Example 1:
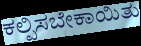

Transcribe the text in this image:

ಕಲ್ಪಿಸಬೇಕಾಯಿತು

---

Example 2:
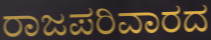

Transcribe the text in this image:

ರಾಜಪರಿವಾರದ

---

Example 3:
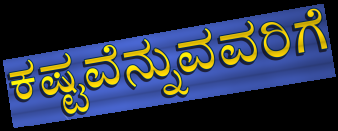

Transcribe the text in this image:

ಕಷ್ಟವೆನ್ನುವವರಿಗೆ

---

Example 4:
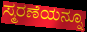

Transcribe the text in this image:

ಸ್ಮರಣೆಯನ್ನೂ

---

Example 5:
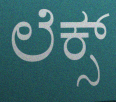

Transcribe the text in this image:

ಲೆಕ್ಸ್